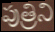
పుత్రిని